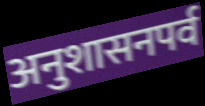
अनुशासनपर्व